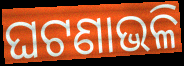
ଘଟଣାଭଳି